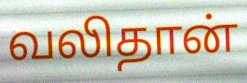
வலிதான்